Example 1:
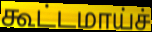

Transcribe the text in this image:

கூட்டமாய்ச்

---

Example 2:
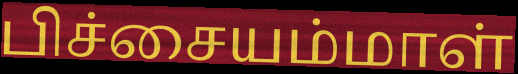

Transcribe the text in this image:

பிச்சையம்மாள்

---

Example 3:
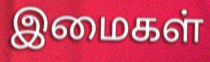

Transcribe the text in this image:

இமைகள்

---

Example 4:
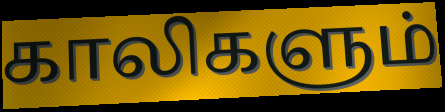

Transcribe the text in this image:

காலிகளும்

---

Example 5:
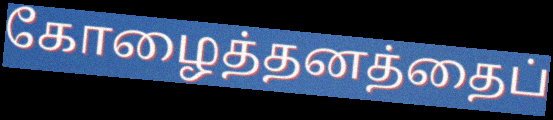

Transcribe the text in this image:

கோழைத்தனத்தைப்